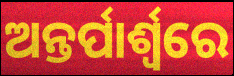
ଅନ୍ତର୍ପାର୍ଶ୍ୱରେ